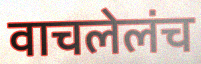
वाचलेलंच